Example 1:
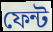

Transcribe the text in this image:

ফেন্ট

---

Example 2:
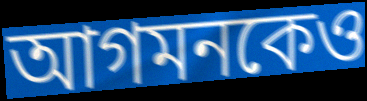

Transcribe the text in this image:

আগমনকেও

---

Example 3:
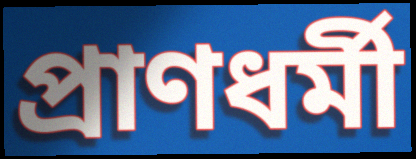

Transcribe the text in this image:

প্রাণধর্মী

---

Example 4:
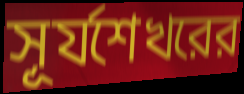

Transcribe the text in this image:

সূর্যশেখরের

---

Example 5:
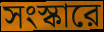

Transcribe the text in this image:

সংস্কারে